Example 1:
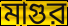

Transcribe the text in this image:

মাগুর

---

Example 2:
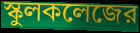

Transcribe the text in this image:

স্কুলকলেজের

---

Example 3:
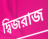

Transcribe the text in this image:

দ্বিজরাজ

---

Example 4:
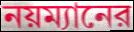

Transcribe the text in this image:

নয়ম্যানের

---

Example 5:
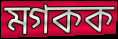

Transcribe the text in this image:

মগকক